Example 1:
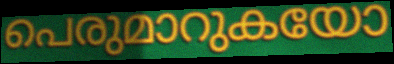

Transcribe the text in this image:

പെരുമാറുകയോ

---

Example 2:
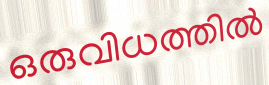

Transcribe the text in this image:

ഒരുവിധത്തിൽ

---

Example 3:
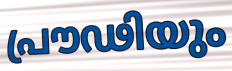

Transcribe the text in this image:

പ്രൗഢിയും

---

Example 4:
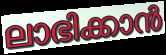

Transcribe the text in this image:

ലാഭിക്കാൻ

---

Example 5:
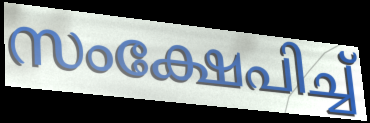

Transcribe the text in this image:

സംക്ഷേപിച്ച്